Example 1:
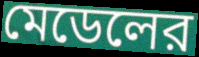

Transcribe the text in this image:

মেডেলের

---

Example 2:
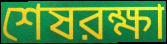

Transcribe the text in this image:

শেষরক্ষা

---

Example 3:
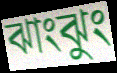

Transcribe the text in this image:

ঝাংঝুং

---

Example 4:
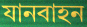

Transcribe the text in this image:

যানবাহন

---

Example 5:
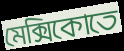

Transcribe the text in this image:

মেক্সিকোতে